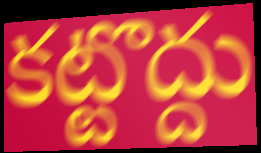
కట్టొద్దు